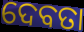
ଦେବତା